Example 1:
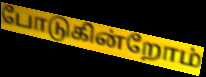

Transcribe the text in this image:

போடுகின்றோம்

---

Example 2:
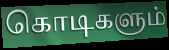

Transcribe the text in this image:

கொடிகளும்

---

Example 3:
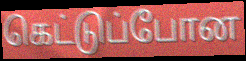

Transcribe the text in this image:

கெட்டுப்போன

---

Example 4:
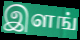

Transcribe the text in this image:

இளங்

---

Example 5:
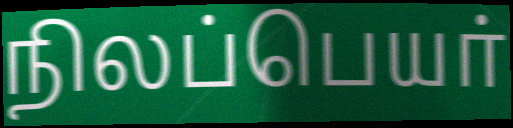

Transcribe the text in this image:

நிலப்பெயர்